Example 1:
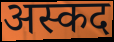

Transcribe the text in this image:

अस्कद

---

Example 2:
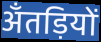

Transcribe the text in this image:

अँतड़ियों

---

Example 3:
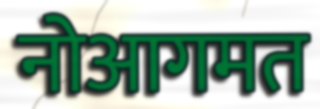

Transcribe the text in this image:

नोआगमत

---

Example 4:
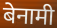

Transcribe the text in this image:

बेनामी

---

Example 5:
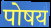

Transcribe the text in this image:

पोषय